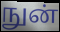
நுன்